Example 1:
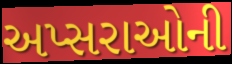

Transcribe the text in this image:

અપ્સરાઓની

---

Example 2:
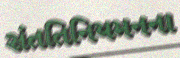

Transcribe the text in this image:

સંતતિનિયમનના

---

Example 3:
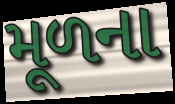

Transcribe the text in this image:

મૂળના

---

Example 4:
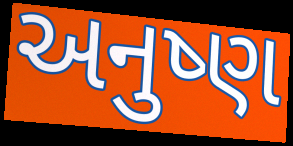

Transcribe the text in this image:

અનુષ્ણ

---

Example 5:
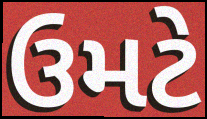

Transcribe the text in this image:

ઉમટે